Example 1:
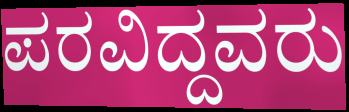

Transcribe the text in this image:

ಪರವಿದ್ದವರು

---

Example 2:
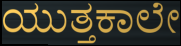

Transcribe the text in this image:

ಯುತ್ತಕಾಲೇ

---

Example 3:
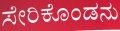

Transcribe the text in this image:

ಸೇರಿಕೊಂಡನು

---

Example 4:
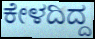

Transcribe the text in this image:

ಕೇಳದಿದ್ದ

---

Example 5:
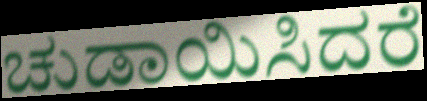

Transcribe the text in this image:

ಚುಡಾಯಿಸಿದರೆ